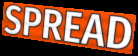
SPREAD